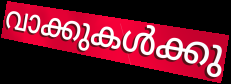
വാക്കുകൾക്കു